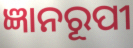
ଜ୍ଞାନରୂପୀ